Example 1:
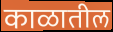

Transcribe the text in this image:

काळातील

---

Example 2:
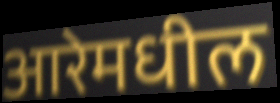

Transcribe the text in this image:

आरेमधील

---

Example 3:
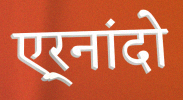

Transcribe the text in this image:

एर्नांदो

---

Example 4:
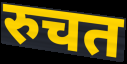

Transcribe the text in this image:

रुचत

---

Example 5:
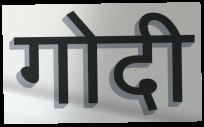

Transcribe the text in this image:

गोदी